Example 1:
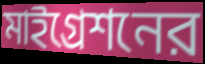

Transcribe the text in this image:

মাইগ্রেশনের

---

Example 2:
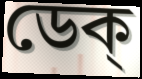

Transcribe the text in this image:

ডেক্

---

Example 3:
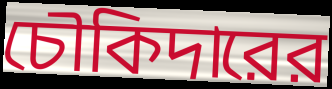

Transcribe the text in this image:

চৌকিদারের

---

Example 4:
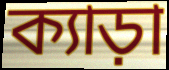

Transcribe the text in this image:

ক্যাড়া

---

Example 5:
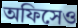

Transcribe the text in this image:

অফিসেও